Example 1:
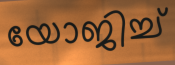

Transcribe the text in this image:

യോജിച്ച്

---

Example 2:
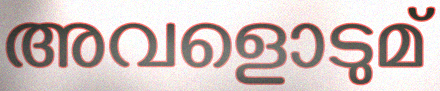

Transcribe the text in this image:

അവളൊടുമ്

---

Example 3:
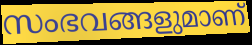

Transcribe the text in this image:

സംഭവങ്ങളുമാണ്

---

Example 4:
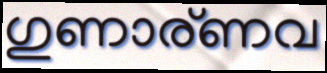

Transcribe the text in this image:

ഗുണാര്ണവ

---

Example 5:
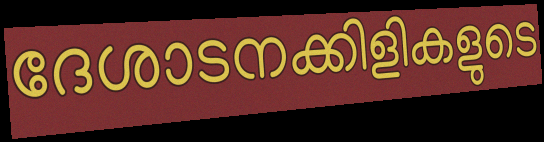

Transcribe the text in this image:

ദേശാടനക്കിളികളുടെ